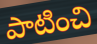
పాటించి